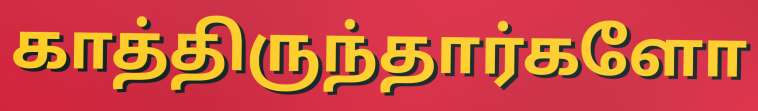
காத்திருந்தார்களோ